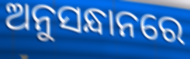
ଅନୁସନ୍ଧାନରେ